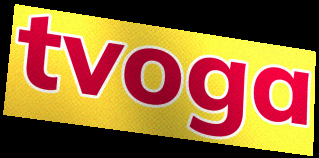
tvoga